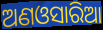
ଅଣଓସାରିଆ